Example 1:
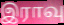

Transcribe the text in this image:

இராவு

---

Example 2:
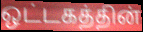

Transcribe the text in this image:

ஒட்டகத்தின்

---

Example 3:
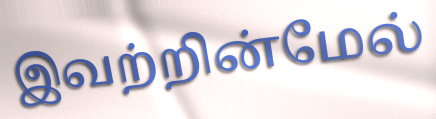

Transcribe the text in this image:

இவற்றின்மேல்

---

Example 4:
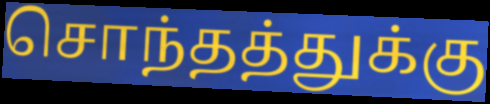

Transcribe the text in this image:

சொந்தத்துக்கு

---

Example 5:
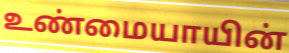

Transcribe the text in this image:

உண்மையாயின்